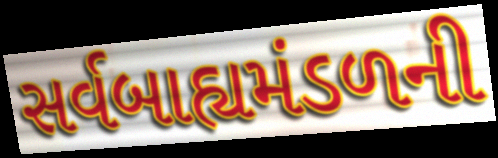
સર્વબાહ્યમંડળની